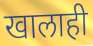
खालाही